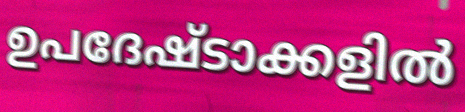
ഉപദേഷ്ടാക്കളിൽ